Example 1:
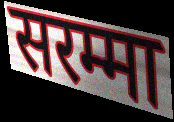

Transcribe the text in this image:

सरम्मा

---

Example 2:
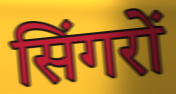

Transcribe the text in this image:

सिंगरों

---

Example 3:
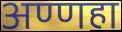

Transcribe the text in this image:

अण्णहा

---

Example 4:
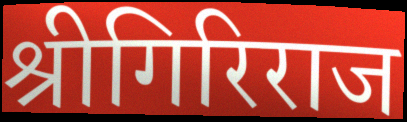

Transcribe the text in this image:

श्रीगिरिराज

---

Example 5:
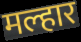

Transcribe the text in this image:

मल्हार